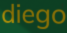
diego